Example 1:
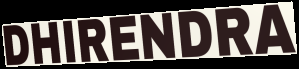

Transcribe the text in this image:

DHIRENDRA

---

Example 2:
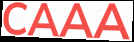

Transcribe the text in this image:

CAAA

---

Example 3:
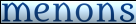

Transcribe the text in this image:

menons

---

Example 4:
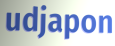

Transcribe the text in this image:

udjapon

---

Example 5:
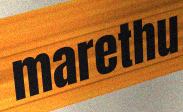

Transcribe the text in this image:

marethu